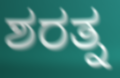
ಶರತ್ನ